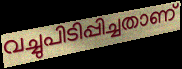
വച്ചുപിടിപ്പിച്ചതാണ്